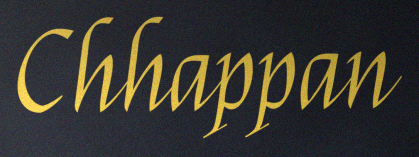
Chhappan